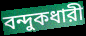
বন্দুকধারী